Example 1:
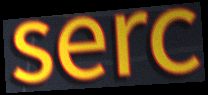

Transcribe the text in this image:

serc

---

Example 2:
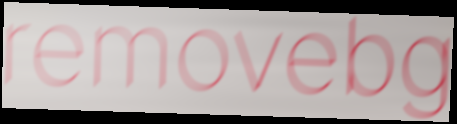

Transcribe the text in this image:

removebg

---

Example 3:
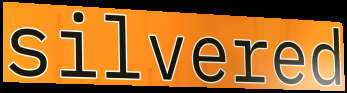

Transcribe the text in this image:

silvered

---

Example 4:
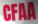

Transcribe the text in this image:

CFAA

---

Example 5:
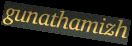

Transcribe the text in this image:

gunathamizh